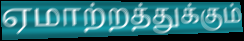
ஏமாற்றத்துக்கும்